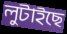
লুটাইছে